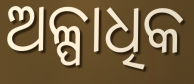
ଅଳ୍ପାଧିକ